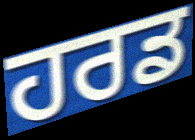
ਹਰਡ